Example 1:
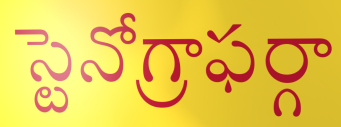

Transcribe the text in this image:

స్టెనోగ్రాఫర్గా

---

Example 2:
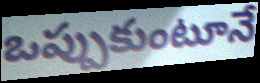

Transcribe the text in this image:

ఒప్పుకుంటూనే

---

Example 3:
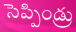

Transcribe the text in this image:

సెప్పిండ్రు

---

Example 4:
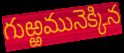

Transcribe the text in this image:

గుఱ్ఱమునెక్కిన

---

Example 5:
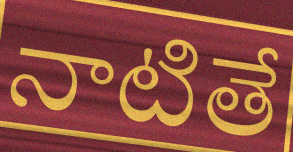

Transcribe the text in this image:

నాటితే